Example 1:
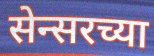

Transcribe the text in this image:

सेन्सरच्या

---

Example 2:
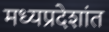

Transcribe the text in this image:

मध्यप्रदेशांत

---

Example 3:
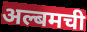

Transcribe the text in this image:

अल्बमची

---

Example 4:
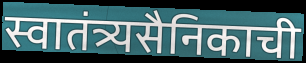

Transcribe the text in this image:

स्वातंत्र्यसैनिकाची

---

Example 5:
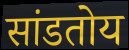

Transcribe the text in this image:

सांडतोय